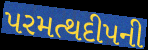
પરમત્થદીપની